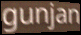
gunjan